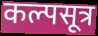
कल्पसूत्र